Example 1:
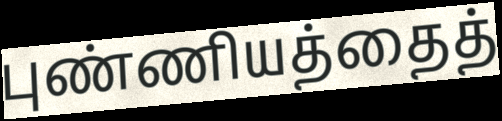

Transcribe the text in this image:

புண்ணியத்தைத்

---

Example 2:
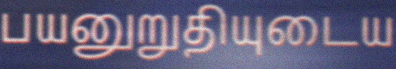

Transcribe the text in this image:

பயனுறுதியுடைய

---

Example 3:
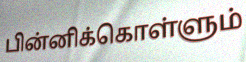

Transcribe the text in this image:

பின்னிக்கொள்ளும்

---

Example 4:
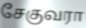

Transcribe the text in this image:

சேகுவரா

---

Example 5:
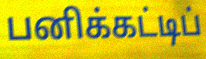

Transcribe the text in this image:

பனிக்கட்டிப்